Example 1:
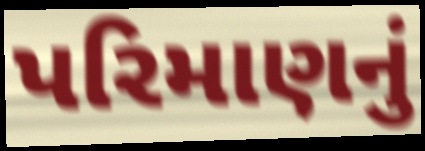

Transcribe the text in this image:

પરિમાણનું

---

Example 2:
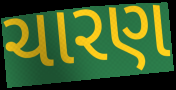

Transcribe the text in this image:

ચારણ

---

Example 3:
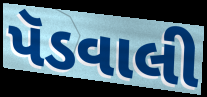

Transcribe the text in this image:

પૅડવાલી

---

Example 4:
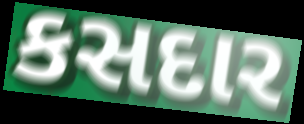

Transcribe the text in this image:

કસદાર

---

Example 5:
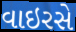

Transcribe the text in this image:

વાઇરસે